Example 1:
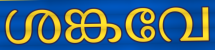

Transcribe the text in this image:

ശങ്കവേ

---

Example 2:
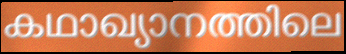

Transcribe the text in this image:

കഥാഖ്യാനത്തിലെ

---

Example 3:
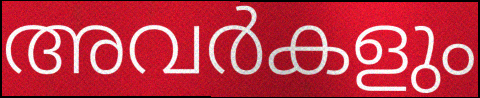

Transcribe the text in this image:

അവർകളും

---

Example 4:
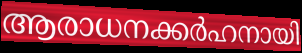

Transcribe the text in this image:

ആരാധനക്കർഹനായി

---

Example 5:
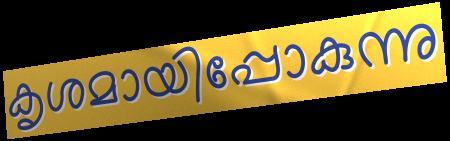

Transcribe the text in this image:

കൃശമായിപ്പോകുന്നു